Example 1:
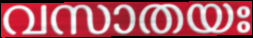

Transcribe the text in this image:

വസാതയഃ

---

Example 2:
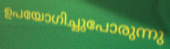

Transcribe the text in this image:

ഉപയോഗിച്ചുപോരുന്നു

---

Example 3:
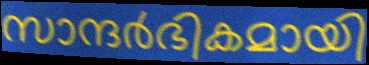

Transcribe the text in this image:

സാന്ദർഭികമായി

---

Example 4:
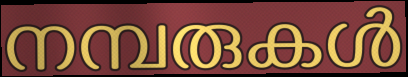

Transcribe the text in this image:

നമ്പരുകൾ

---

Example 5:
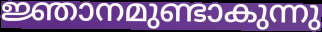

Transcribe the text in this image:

ജ്ഞാനമുണ്ടാകുന്നു